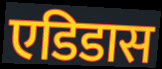
एडिडास